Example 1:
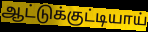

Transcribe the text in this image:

ஆட்டுக்குட்டியாய்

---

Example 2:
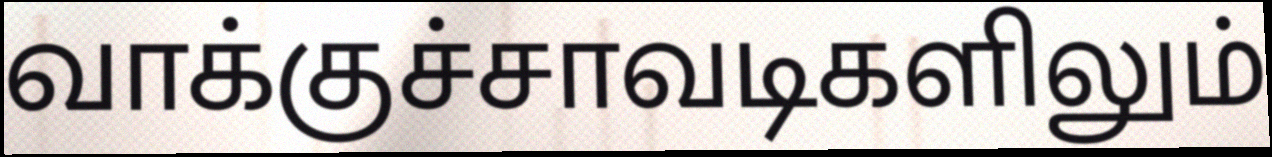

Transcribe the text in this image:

வாக்குச்சாவடிகளிலும்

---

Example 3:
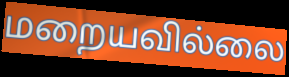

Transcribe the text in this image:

மறையவில்லை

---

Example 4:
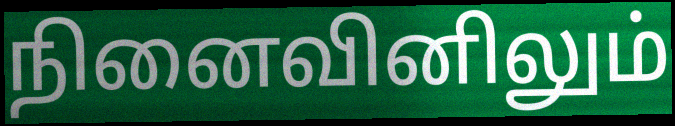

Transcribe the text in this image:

நினைவினிலும்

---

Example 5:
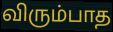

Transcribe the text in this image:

விரும்பாத